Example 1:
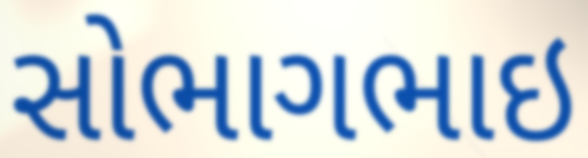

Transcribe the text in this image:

સોભાગભાઇ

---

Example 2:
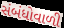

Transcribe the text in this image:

સંબંધોવાળી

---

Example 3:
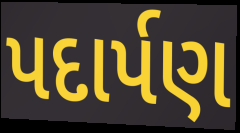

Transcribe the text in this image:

પદાર્પણ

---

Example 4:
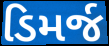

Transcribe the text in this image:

ડિમર્જ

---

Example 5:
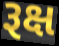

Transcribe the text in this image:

રૂક્ષ